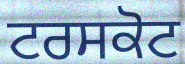
ਟਰਸਕੋਟ